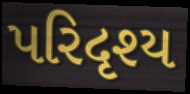
પરિદૃશ્ય